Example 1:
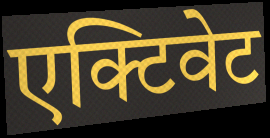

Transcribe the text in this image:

एक्टिवेट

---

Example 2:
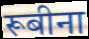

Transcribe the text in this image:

रूबीना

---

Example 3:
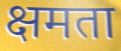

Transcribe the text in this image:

क्षमता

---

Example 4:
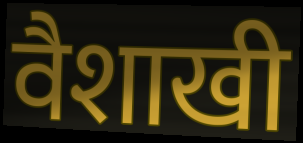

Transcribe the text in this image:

वैशाखी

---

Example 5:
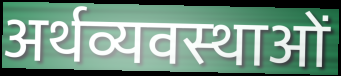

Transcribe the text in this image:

अर्थव्यवस्थाओं